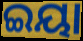
ଇୟା